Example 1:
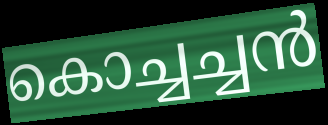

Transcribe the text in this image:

കൊച്ചച്ചൻ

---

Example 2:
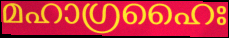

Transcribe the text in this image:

മഹാഗ്രഹൈഃ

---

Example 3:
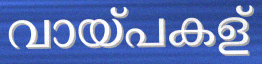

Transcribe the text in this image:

വായ്പകള്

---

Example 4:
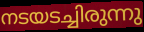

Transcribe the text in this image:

നടയടച്ചിരുന്നു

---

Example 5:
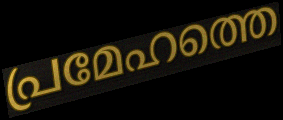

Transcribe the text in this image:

പ്രമേഹത്തെ